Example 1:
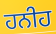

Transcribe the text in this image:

ਹਨੀਹ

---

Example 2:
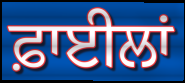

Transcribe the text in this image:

ਫ਼ਾਈਲਾਂ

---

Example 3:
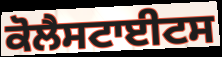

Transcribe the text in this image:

ਕੋਲੈਸਟਾਈਟਸ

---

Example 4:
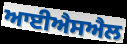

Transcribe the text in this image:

ਆਈਐਸਐਲ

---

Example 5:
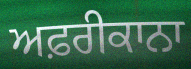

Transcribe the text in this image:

ਅਫ਼ਰੀਕਾਨਾ